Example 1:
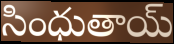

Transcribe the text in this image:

సింధుతాయ్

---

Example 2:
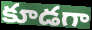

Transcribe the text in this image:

కూడగా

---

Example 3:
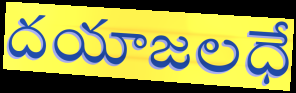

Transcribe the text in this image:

దయాజలధే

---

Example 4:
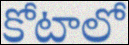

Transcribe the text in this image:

కోటాలో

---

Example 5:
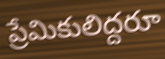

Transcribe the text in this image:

ప్రేమికులిద్దరూ